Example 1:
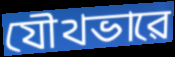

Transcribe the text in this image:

যৌথভাৱে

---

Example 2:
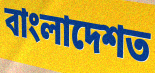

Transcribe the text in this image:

বাংলাদেশত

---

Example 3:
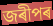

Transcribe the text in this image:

জৰীপৰ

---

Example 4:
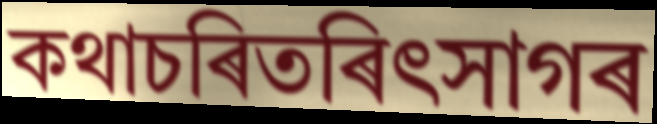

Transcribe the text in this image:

কথাচৰিতৰিৎসাগৰ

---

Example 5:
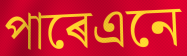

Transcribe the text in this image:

পাৰেএনে